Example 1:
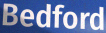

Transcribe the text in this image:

Bedford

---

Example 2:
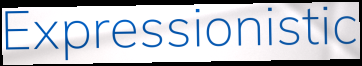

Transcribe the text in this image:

Expressionistic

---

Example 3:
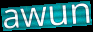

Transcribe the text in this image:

awun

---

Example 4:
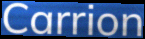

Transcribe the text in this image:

Carrion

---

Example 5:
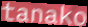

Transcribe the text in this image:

tanako